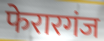
फेरारगंज